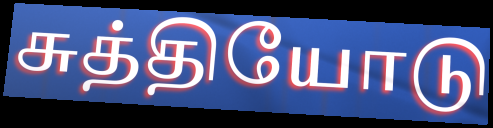
சுத்தியோடு